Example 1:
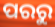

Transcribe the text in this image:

ପରରୁ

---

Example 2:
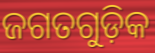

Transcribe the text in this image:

ଜଗତଗୁଡ଼ିକ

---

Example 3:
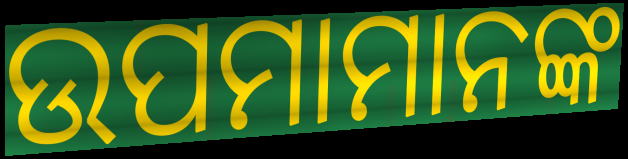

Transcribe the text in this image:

ଉପମାମାନଙ୍କ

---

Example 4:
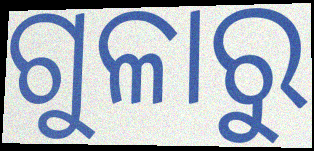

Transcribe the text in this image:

ଗୁଳାରୁ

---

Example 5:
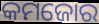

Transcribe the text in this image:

କମଜୋର